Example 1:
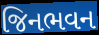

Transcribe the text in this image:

જિનભવન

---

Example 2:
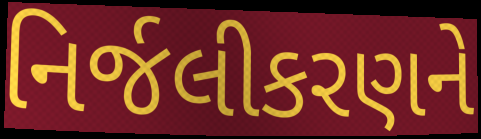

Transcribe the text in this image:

નિર્જલીકરણને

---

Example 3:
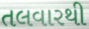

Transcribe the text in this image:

તલવારથી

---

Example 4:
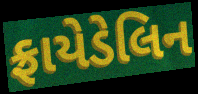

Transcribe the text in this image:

ફ્રાયેડેલિન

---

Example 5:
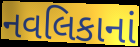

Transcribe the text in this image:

નવલિકાનાં